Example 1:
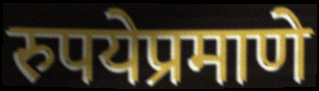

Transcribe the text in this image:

रुपयेप्रमाणे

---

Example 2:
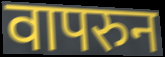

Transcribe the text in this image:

वापरुन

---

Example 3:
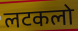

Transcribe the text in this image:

लटकलो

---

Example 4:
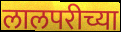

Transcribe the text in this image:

लालपरीच्या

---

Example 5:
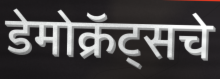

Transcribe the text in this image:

डेमोक्रॅट्सचे